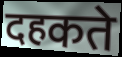
दहकते